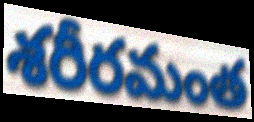
శరీరమంత